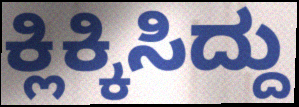
ಕ್ಲಿಕ್ಕಿಸಿದ್ದು